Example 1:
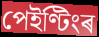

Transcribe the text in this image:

পেইণ্টিংৰ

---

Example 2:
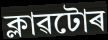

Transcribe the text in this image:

ক্লাৱটোৰ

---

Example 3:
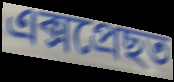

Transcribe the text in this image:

এক্সপ্ৰেছত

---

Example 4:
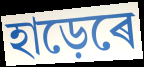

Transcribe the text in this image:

হাড়েৰে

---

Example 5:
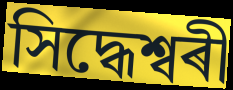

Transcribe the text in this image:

সিদ্ধেশ্বৰী